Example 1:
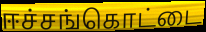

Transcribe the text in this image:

ஈச்சங்கொட்டை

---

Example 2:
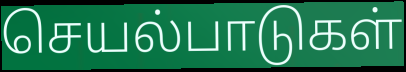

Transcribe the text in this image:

செயல்பாடுகள்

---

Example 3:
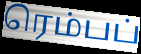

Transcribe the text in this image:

ரெம்பப்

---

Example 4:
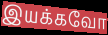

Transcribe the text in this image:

இயக்கவோ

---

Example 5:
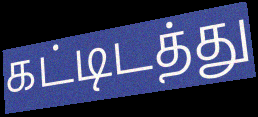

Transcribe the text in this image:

கட்டிடத்து